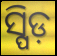
ସ୍ପିଡ଼